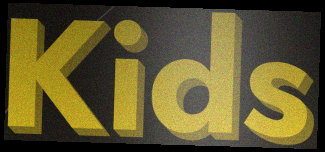
Kids